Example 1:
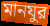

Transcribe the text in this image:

মানযুর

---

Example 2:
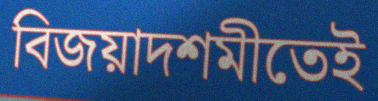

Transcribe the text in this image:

বিজয়াদশমীতেই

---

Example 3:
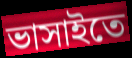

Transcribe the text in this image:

ভাসাইতে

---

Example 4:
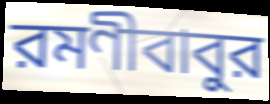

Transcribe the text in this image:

রমণীবাবুর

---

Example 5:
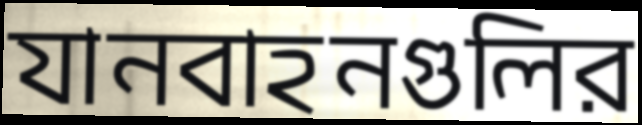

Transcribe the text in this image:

যানবাহনগুলির